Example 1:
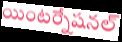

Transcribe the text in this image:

యింటర్నేషనల్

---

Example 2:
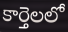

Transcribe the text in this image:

కార్తెలలో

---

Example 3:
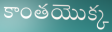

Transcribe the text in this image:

కాంతయొక్క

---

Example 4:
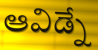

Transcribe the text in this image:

ఆవిడ్నే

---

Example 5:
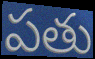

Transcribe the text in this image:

పతు